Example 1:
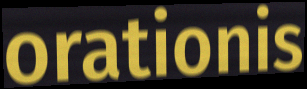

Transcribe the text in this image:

orationis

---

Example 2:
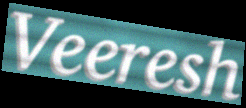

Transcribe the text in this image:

Veeresh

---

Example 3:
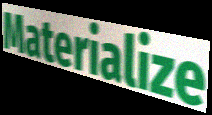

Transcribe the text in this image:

Materialize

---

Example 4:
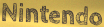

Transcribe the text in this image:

Nintendo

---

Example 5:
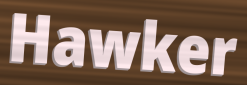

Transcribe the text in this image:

Hawker